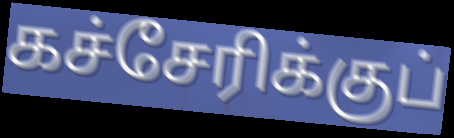
கச்சேரிக்குப்